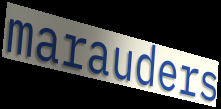
marauders